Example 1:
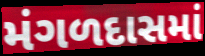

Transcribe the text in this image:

મંગળદાસમાં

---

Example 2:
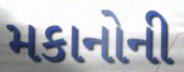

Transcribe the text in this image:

મકાનોની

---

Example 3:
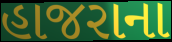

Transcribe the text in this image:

હાજરાના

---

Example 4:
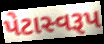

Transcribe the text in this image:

પેટાસ્વરૂપ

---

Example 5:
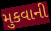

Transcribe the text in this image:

મુકવાની